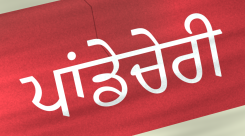
ਪਾਂਡੇਚੇਰੀ